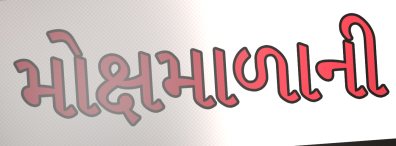
મોક્ષમાળાની